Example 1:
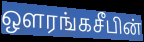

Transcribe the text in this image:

ஔரங்கசீபின்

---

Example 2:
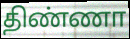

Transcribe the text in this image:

திண்ணா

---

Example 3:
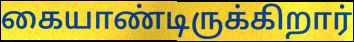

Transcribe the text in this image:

கையாண்டிருக்கிறார்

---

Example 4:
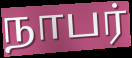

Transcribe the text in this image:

நாபர்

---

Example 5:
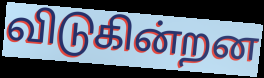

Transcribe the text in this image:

விடுகின்றன